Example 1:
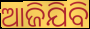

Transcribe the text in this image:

ଆଜିଯିବି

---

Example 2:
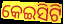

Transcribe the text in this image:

କେଇସିଟି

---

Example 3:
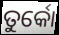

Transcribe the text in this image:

ତୁର୍କୋ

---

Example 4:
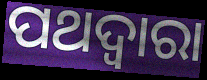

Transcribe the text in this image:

ପଥଦ୍ଵାରା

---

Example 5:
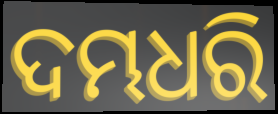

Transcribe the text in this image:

ଦମ୍ଭଧରି